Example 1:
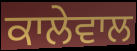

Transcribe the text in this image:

ਕਾਲੇਵਾਲ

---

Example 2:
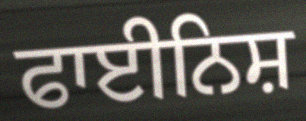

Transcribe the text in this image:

ਫਾਈਨਿਸ਼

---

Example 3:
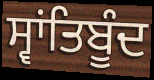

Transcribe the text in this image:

ਸ੍ਵਾਂਤਿਬੂੰਦ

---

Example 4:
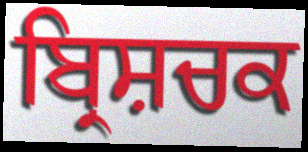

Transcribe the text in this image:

ਬ੍ਰਿਸ਼ਚਕ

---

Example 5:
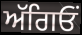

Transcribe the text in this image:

ਅੱਗਿਓਂ